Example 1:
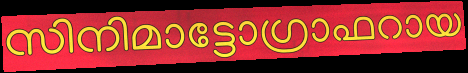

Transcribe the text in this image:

സിനിമാട്ടോഗ്രാഫറായ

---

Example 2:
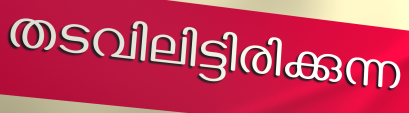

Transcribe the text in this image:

തടവിലിട്ടിരിക്കുന്ന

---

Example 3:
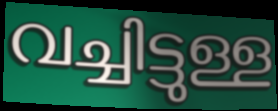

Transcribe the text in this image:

വച്ചിട്ടുള്ള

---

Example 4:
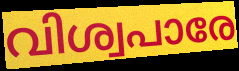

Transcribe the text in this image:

വിശ്വപാരേ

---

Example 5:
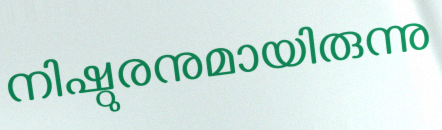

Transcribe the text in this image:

നിഷ്ഠുരനുമായിരുന്നു